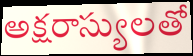
అక్షరాస్యులతో